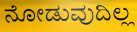
ನೋಡುವುದಿಲ್ಲ